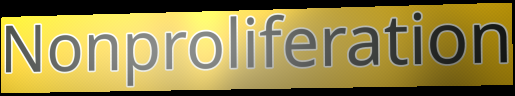
Nonproliferation